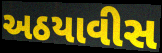
અઠયાવીસ